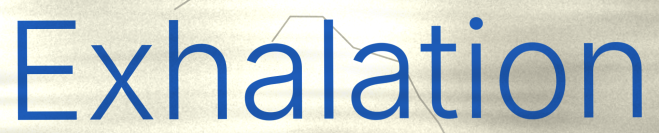
Exhalation